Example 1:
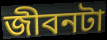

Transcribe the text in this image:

জীবনটা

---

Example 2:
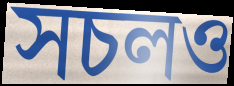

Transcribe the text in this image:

সচলও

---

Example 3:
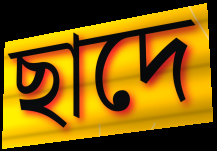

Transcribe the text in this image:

ছাদে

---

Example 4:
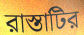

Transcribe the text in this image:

রাস্তাটির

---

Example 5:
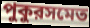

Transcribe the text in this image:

পুকুরসমেত